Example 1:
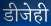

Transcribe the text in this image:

डीजेही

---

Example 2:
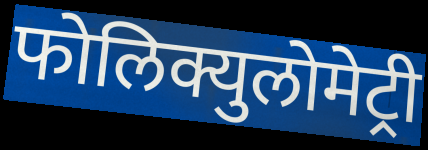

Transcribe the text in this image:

फोलिक्युलोमेट्री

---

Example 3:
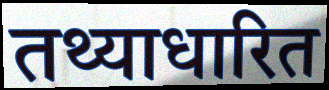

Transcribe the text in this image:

तथ्याधारित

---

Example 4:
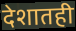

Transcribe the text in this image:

देशातही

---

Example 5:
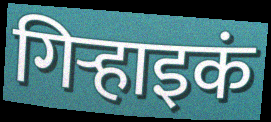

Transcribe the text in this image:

गिऱ्हाइकं